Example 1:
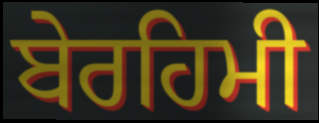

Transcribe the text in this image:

ਬੇਰਹਿਮੀ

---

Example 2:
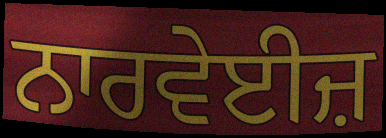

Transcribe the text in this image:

ਨਾਰਵੇਈਜ਼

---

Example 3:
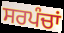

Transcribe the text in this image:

ਸਰਪੰਚਾਂ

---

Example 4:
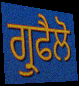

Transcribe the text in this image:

ਗ੍ਰੁਫੈਲੋ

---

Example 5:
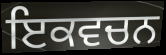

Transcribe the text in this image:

ਇਕਵਚਨ